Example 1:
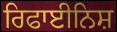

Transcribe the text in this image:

ਰਿਫਾਈਨਿਸ਼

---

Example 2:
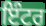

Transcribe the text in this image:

ਇੰਟਰ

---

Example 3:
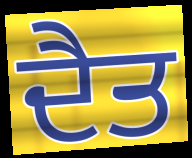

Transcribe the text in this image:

ਦੈਤ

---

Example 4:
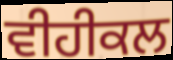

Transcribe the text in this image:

ਵੀਹੀਕਲ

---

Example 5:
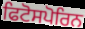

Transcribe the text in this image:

ਫਿਟੋਸਪੋਰਿਨ